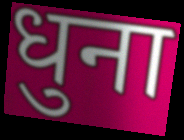
धुना